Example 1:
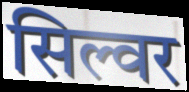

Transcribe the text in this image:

सिल्‍वर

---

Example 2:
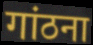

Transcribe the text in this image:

गांठना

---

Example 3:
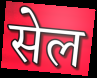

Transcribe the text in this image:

सेल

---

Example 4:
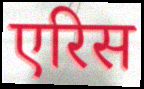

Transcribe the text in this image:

एरिस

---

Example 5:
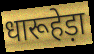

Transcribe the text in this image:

धारूहेड़ा